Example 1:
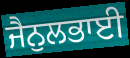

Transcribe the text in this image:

ਜੈਨੁਲਭਾਈ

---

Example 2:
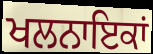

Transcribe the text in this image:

ਖਲਨਾਇਕਾਂ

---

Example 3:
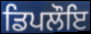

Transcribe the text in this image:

ਡਿਪਲੌਇ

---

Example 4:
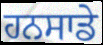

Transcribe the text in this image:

ਹਨਸਾਡੇ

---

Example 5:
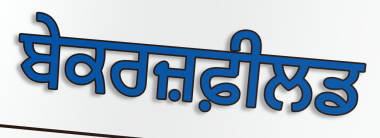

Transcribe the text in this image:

ਬੇਕਰਜ਼ਫ਼ੀਲਡ